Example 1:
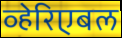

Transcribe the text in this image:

व्हेरिएबल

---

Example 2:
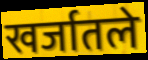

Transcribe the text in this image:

खर्जातले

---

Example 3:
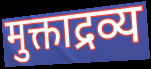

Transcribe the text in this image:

मुक्ताद्रव्य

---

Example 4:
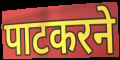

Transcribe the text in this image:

पाटकरने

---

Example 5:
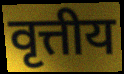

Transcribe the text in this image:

वृत्तीय